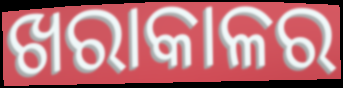
ଖରାକାଳର